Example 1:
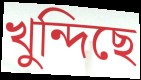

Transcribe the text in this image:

খুন্দিছে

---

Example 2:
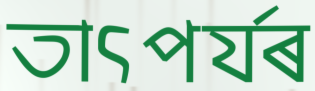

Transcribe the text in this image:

তাৎপৰ্যৰ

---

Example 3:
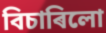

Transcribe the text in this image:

বিচাৰিলো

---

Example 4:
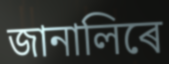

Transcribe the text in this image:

জানালিৰে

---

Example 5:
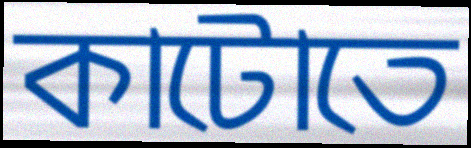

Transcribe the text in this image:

কাটোতে